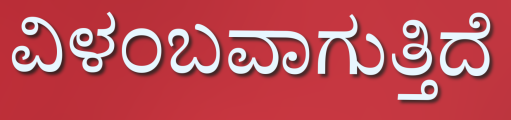
ವಿಳಂಬವಾಗುತ್ತಿದೆ